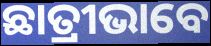
ଛାତ୍ରୀଭାବେ